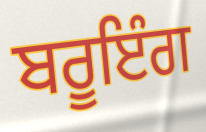
ਬਰੂਇੰਗ